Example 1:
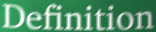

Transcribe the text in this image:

Definition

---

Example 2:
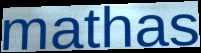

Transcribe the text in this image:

mathas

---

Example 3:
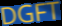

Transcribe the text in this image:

DGFT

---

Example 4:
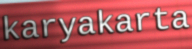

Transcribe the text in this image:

karyakarta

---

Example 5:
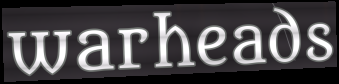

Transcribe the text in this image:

warheads